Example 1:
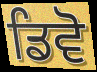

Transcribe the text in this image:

ਡਿਵੋ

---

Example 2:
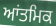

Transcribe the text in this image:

ਆਂਤਮਿਕ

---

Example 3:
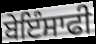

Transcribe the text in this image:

ਬੇਇੰਸਾਫੀ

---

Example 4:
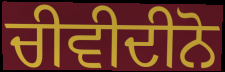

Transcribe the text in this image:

ਚੀਵੀਦੀਨੋ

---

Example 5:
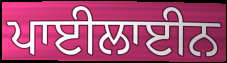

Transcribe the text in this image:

ਪਾਈਲਾਈਨ